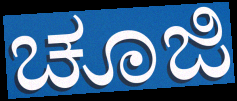
ಚೂಜಿ